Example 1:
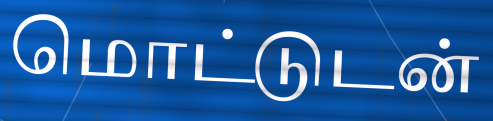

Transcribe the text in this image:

மொட்டுடன்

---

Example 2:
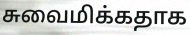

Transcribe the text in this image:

சுவைமிக்கதாக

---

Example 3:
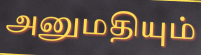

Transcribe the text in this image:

அனுமதியும்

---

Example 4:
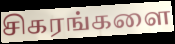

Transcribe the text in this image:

சிகரங்களை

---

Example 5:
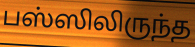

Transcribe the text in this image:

பஸ்ஸிலிருந்த